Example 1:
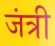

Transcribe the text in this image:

जंत्री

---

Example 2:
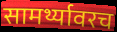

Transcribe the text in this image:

सामर्थ्यावरच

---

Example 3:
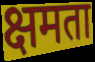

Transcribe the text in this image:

क्षमता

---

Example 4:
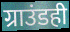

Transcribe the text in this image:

ग्राउंडही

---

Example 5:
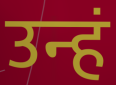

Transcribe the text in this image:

उन्हं